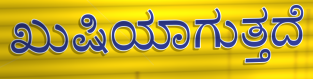
ಖುಷಿಯಾಗುತ್ತದೆ